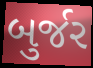
બુર્જર